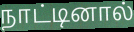
நாட்டினால்